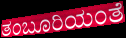
ತಂಬೂರಿಯಂತೆ